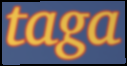
taga